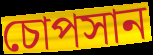
চোপসান